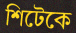
শিটেকে